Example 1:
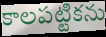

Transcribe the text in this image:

కాలపట్టికను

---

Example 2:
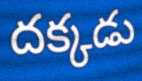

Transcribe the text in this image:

దక్కడు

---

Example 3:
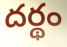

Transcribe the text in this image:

దర్థం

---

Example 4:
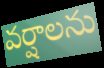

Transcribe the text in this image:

వర్షాలను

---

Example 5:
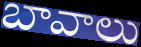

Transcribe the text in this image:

బావాలు